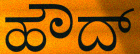
ಹೌದ್